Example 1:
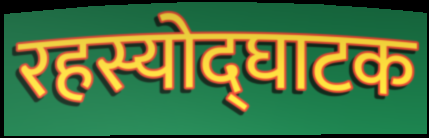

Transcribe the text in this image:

रहस्योद्घाटक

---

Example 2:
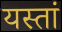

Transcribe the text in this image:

यस्तां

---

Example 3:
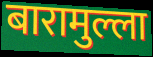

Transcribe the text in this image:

बारामुल्ला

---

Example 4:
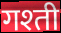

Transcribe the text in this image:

गश्‍ती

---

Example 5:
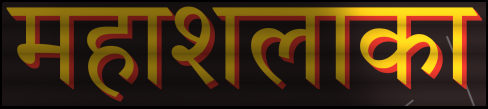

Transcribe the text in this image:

महाशलाका